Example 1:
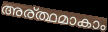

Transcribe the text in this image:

അര്ത്ഥമാകാം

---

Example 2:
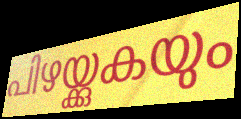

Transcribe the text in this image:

പിഴയ്ക്കുകയും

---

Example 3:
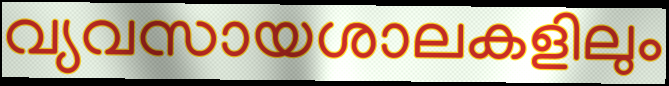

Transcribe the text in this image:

വ്യവസായശാലകളിലും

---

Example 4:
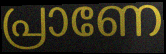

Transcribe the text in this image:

പ്രാണേ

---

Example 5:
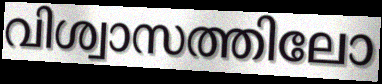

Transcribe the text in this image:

വിശ്വാസത്തിലോ